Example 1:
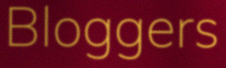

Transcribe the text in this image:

Bloggers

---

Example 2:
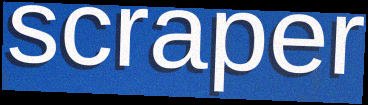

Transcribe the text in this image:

scraper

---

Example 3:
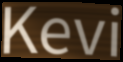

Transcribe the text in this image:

Kevi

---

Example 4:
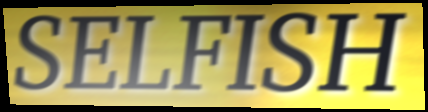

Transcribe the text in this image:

SELFISH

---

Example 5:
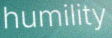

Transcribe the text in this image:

humility